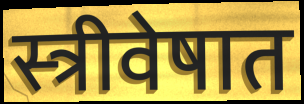
स्त्रीवेषात